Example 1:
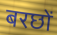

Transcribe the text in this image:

बरछों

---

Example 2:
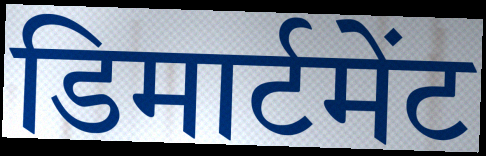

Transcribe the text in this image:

डिमार्टमेंट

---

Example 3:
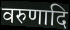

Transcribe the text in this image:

वरुणादि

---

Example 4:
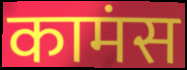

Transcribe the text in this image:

कामंस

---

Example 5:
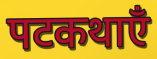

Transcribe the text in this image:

पटकथाएँ